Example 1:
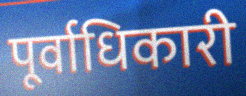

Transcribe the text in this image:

पूर्वाधिकारी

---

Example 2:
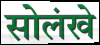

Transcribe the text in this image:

सोलंखे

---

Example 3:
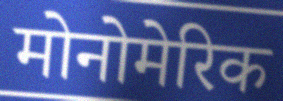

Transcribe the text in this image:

मोनोमेरिक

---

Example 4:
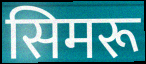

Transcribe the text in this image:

सिमरू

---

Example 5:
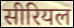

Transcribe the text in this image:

सीरियल